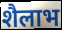
शैलाभ